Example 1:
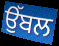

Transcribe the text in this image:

ਉੱਬਲ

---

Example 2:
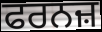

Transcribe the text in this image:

ਫਰਨਜ਼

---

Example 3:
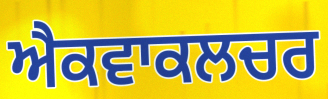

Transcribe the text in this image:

ਐਕਵਾਕਲਚਰ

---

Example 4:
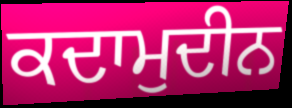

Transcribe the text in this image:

ਕਦਾਮੁਦੀਨ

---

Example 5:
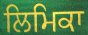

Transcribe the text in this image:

ਲਿਮਿਕਾ